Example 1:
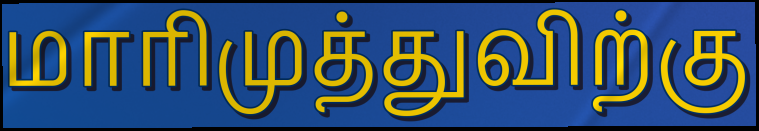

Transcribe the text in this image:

மாரிமுத்துவிற்கு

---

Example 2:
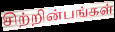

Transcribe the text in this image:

சிற்றின்பங்கள்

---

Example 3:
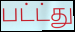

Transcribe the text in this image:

பட்ட்து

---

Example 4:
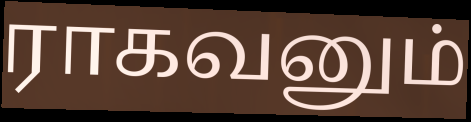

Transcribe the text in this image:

ராகவனும்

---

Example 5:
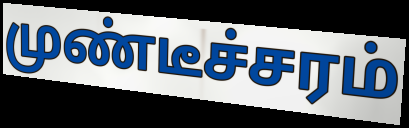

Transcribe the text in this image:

முண்டீச்சரம்